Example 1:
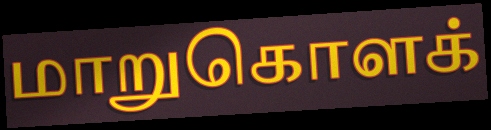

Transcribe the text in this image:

மாறுகொளக்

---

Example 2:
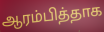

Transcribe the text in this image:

ஆரம்பித்தாக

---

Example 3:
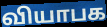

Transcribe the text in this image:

வியாபக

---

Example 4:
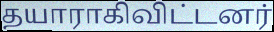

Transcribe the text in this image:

தயாராகிவிட்டனர்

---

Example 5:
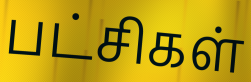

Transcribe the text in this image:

பட்சிகள்